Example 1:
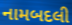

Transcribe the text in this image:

નામબદલી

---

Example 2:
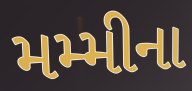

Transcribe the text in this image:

મમ્મીના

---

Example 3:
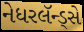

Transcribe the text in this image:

નેધરલૅન્ડ્સે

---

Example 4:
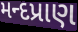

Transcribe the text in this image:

મન્દપ્રાણ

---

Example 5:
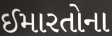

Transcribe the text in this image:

ઈમારતોના